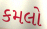
કમલો